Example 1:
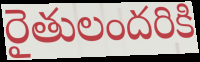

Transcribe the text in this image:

రైతులందరికి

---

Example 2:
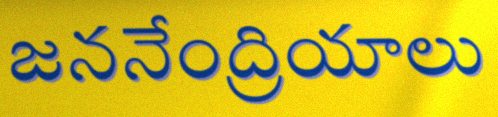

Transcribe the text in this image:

జననేంద్రియాలు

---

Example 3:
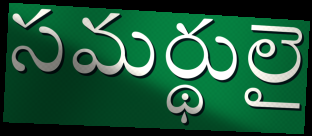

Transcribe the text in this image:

సమర్థులై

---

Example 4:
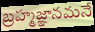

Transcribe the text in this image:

బ్రహ్మజ్ఞానమనే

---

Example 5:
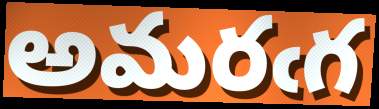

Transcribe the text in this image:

అమరఁగ